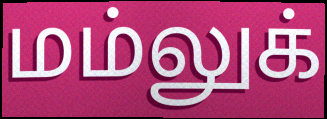
மம்லுக்